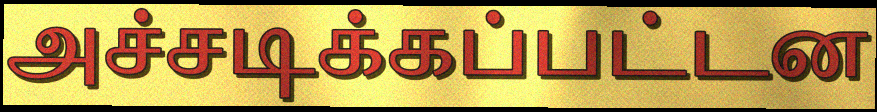
அச்சடிக்கப்பட்டன